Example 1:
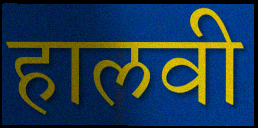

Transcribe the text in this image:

हालवी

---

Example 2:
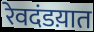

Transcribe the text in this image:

रेवदंडय़ात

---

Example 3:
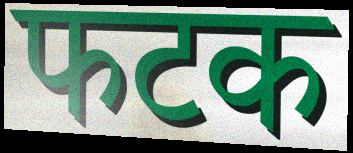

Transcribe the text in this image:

फटक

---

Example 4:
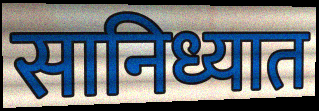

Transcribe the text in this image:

सानिध्यात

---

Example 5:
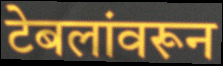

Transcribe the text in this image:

टेबलांवरून